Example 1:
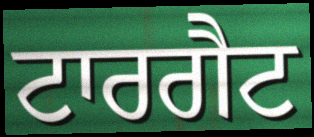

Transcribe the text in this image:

ਟਾਰਗੈਟ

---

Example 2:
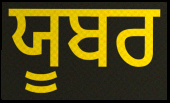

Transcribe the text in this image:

ਯੂਬਰ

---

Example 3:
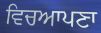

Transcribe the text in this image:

ਵਿਚਆਪਣਾ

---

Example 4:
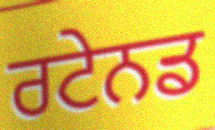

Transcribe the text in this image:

ਰਟੇਨਡ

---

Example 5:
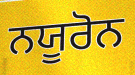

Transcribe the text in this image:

ਨਯੂਰੋਨ